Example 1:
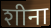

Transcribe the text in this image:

शीना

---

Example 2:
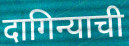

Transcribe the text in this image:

दागिन्याची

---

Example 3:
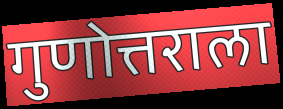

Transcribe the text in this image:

गुणोत्तराला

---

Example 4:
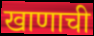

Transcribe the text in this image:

खाणाची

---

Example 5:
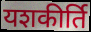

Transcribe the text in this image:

यशकीर्ति